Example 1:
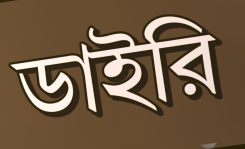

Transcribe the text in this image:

ডাইরি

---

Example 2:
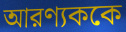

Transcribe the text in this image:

আরণ্যককে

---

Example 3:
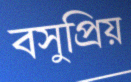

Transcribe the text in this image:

বসুপ্রিয়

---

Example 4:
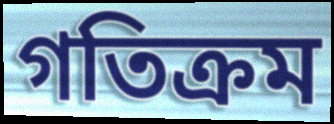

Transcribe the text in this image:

গতিক্রম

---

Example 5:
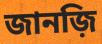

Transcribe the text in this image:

জানজ়ি